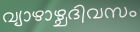
വ്യാഴാഴ്ചദിവസം